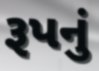
રૂપનું